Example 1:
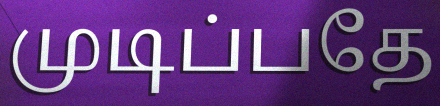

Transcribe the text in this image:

முடிப்பதே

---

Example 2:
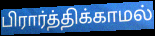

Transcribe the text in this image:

பிரார்த்திக்காமல்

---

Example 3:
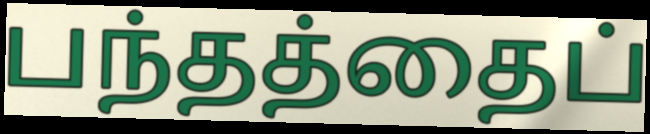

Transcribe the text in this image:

பந்தத்தைப்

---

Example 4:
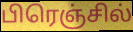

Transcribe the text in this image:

பிரெஞ்சில்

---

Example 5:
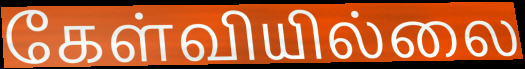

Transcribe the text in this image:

கேள்வியில்லை